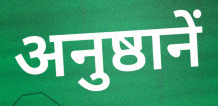
अनुष्ठानें